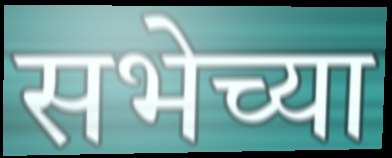
सभेच्या